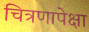
चित्रणापेक्षा